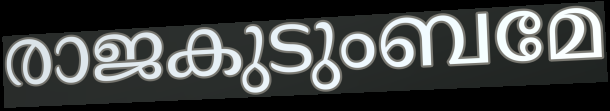
രാജകുടുംബമേ